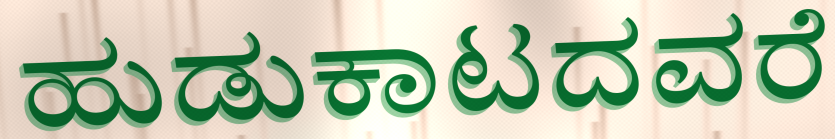
ಹುಡುಕಾಟದವರೆ